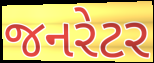
જનરેટર